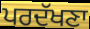
ਪਰਦੱਖਣਾ